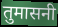
तुमासनी